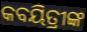
କବୟିତ୍ରୀଙ୍କ